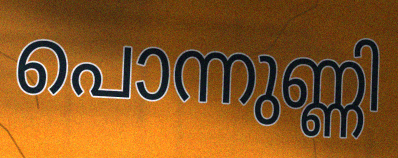
പൊന്നുണ്ണി